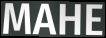
MAHE